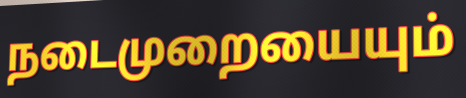
நடைமுறையையும்